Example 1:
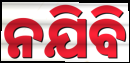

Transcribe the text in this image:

ନଯିବି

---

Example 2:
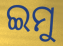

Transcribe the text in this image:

ଇମୁ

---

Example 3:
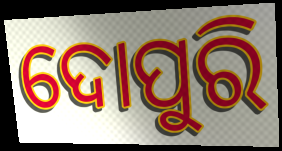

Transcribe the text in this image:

ଦୋପୁରି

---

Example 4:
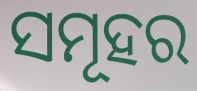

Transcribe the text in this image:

ସମୂହର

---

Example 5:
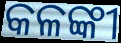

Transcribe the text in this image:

କଳଙ୍କୀ